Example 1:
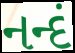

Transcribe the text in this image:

નન્દં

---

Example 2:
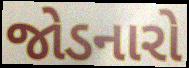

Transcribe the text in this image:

જોડનારો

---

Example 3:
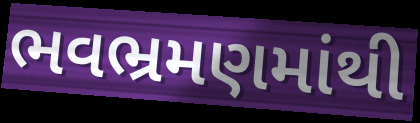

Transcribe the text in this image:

ભવભ્રમણમાંથી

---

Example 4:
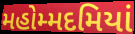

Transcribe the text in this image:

મહોમ્મદમિયાં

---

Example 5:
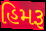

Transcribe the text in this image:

હિમરૂ